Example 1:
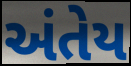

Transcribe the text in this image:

અંતેય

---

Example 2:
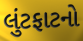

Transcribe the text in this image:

લુંટફાટનો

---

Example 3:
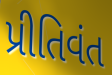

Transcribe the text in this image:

પ્રીતિવંત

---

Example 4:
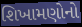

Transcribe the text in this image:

શિખામણોનો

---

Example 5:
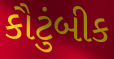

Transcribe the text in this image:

કૌટુંબીક